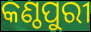
କଣ୍ଠପୁରୀ